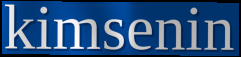
kimsenin